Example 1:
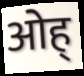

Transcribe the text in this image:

ओह्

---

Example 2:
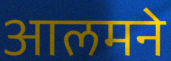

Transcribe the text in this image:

आलमने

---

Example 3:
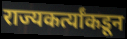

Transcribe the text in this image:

राज्यकर्त्यांकडून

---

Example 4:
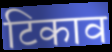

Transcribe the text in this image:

टिकाव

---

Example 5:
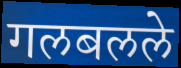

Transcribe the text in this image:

गलबलले